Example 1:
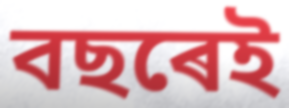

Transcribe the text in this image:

বছৰেই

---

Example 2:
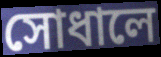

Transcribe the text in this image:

সোধালে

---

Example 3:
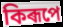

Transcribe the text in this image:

কিৰূপে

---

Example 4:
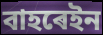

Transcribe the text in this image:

বাহৰেইন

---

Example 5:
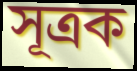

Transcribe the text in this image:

সূত্ৰক